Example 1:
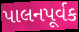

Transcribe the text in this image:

પાલનપૂર્વક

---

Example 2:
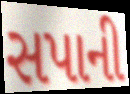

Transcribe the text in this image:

સપાની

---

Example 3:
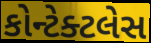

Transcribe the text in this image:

કોન્ટેક્ટલેસ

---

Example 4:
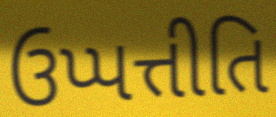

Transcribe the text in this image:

ઉપ્પત્તીતિ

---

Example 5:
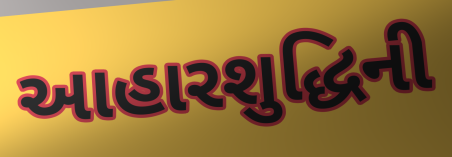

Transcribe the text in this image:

આહારશુદ્ધિની